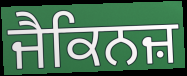
ਜੈਕਿਨਜ਼